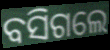
ବସିଗଲେ